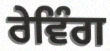
ਰੇਵਿੰਗ